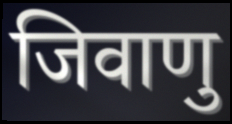
जिवाणु